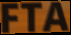
FTA